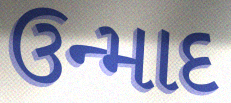
ઉન્માદ